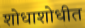
शोधाशोधीत